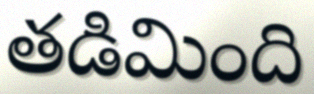
తడిమింది